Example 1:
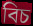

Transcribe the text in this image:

বিচ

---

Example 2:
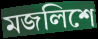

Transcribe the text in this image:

মজলিশে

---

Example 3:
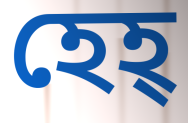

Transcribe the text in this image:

হেহ্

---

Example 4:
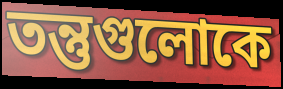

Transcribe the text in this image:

তন্তুগুলোকে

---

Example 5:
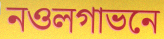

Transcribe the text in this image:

নওলগাভনে